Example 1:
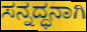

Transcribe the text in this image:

ಸನ್ನದ್ಧನಾಗಿ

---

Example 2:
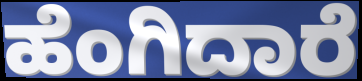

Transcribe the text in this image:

ಹೆಂಗಿದಾರೆ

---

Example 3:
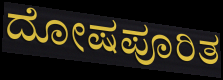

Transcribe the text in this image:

ದೋಷಪೂರಿತ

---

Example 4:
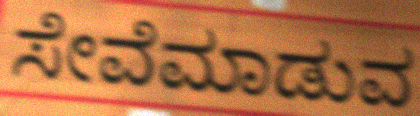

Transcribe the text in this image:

ಸೇವೆಮಾಡುವ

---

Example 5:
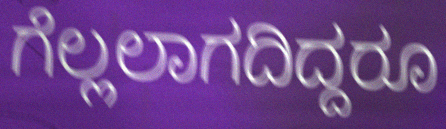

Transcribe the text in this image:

ಗೆಲ್ಲಲಾಗದಿದ್ದರೂ